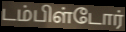
டம்பிள்டோர்